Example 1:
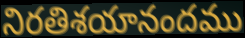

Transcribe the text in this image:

నిరతిశయానందము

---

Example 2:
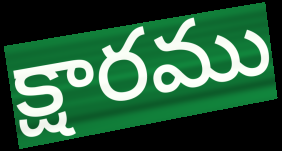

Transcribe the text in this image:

క్షారము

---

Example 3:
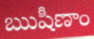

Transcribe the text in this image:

ఋషీణాం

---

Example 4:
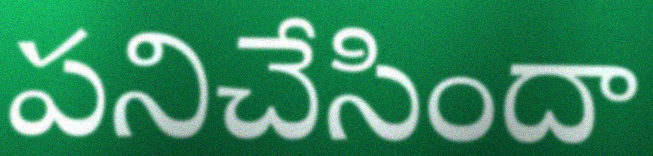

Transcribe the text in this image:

పనిచేసిందా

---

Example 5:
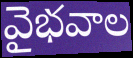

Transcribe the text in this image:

వైభవాల